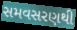
સમવસરણથી